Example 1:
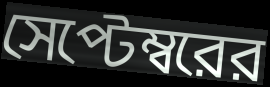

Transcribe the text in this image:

সেপ্টেম্বরের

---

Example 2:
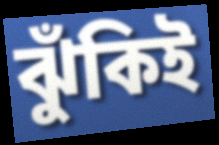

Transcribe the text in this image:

ঝুঁকিই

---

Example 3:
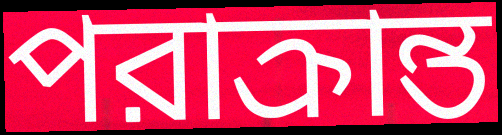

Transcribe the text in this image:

পরাক্রান্ত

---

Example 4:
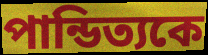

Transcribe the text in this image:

পান্ডিত্যকে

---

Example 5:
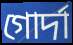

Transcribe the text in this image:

গোর্দা